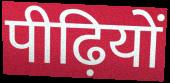
पीढ़ियों